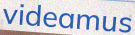
videamus